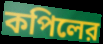
কপিলের